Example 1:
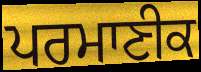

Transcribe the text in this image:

ਪਰਮਾਣੀਕ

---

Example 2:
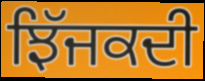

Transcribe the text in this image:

ਝਿੱਜਕਦੀ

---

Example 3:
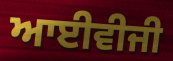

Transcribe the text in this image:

ਆਈਵੀਜੀ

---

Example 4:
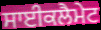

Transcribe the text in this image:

ਸਾਈਕਲੈਮੇਟ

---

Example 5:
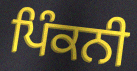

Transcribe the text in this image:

ਪਿੰਕਨੀ